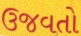
ઉજવતો